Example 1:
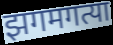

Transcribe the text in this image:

झगमगत्या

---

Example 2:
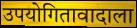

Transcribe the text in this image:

उपयोगितावादाला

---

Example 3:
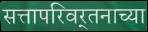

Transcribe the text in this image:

सत्तापरिवर्तनाच्या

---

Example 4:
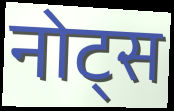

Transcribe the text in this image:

नोट्स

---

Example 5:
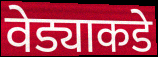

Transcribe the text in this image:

वेड्याकडे